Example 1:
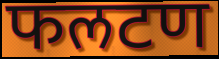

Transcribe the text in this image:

फलटण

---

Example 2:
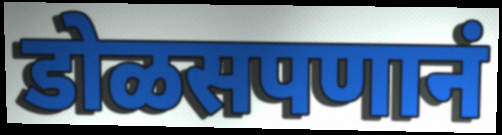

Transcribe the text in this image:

डोळसपणानं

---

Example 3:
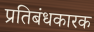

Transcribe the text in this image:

प्रतिबंधकारक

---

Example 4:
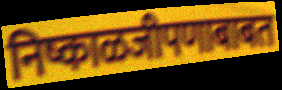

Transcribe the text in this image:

निष्काळजीपणाबाबत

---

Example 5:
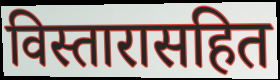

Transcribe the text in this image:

विस्तारासहित